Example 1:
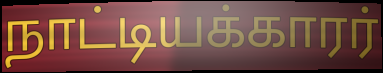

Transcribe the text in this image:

நாட்டியக்காரர்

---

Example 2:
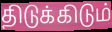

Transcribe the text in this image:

திடுக்கிடும்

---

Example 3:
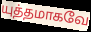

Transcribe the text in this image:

யுத்தமாகவே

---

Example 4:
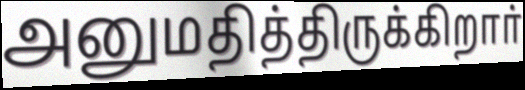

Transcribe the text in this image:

அனுமதித்திருக்கிறார்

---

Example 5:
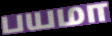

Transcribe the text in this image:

பயமா